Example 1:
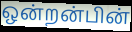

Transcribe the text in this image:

ஒன்றன்பின்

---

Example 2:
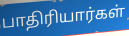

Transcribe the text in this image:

பாதிரியார்கள்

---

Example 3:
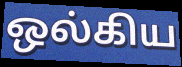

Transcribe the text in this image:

ஒல்கிய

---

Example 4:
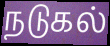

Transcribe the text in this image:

நடுகல்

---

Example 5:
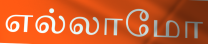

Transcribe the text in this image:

எல்லாமோ